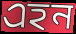
এহন